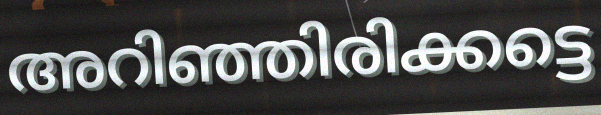
അറിഞ്ഞിരിക്കട്ടെ